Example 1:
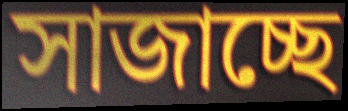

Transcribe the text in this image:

সাজাচ্ছে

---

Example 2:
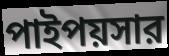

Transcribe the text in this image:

পাইপয়সার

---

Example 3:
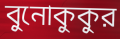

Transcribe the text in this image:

বুনোকুকুর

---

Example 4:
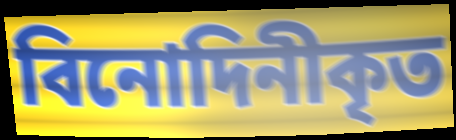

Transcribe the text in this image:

বিনোদিনীকৃত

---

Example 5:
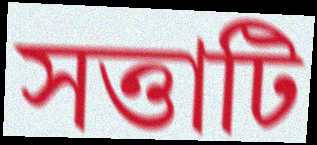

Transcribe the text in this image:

সত্তাটি